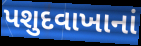
પશુદવાખાનાં